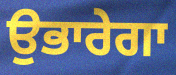
ਉਭਾਰੇਗਾ